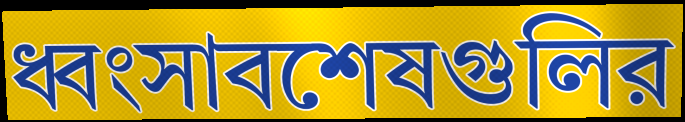
ধ্বংসাবশেষগুলির